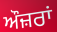
ਔਜ਼ਰਾਂ